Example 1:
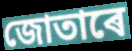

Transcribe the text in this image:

জোতাৰে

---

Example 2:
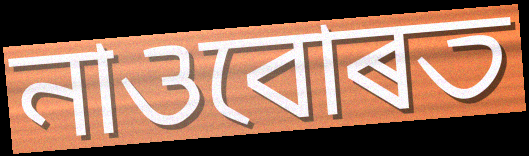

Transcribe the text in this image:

নাওবোৰত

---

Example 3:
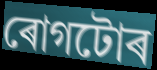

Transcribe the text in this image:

ৰোগটোৰ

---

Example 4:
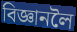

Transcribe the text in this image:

বিজ্ঞানলৈ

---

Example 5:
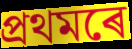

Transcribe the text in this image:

প্ৰথমৰে